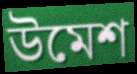
উমেশ